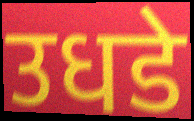
उधडे